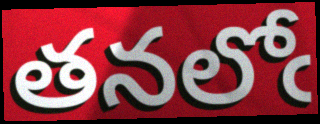
తనలోఁ